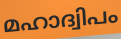
മഹാദ്വിപം